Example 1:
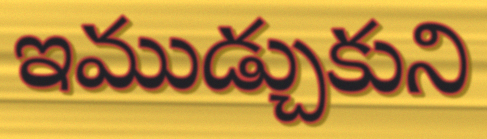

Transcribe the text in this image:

ఇముడ్చుకుని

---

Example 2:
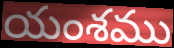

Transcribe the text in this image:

యంశము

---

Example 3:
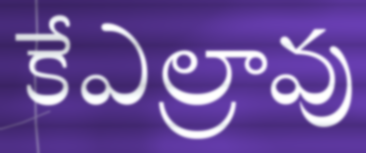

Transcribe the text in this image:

కేఎల్రావు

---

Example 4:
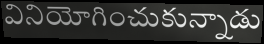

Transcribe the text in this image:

వినియోగించుకున్నాడు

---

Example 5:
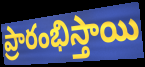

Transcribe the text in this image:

ప్రారంభిస్తాయి